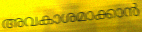
അവകാശമാക്കാൻ